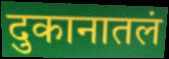
दुकानातलं